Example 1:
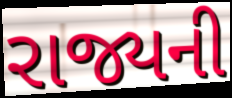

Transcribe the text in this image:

રાજ્યની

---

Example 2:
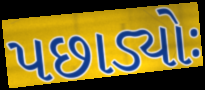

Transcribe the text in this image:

પછાડ્યોઃ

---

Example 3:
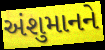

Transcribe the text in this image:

અંશુમાનને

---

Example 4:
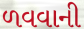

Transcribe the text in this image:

ળવવાની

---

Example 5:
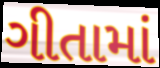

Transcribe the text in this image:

ગીતામાં